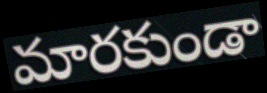
మారకుండా